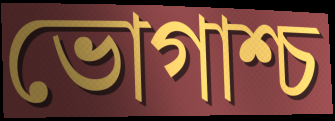
ভোগাশ্চ